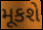
મૂકશે